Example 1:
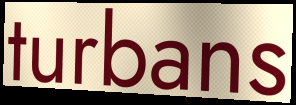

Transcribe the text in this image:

turbans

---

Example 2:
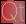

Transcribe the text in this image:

Qt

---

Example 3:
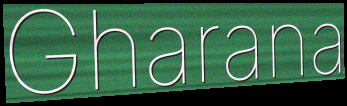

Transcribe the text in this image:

Gharana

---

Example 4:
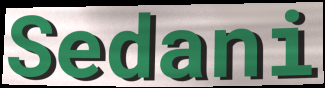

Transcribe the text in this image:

Sedani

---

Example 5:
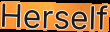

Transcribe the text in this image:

Herself